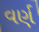
વર્ણ